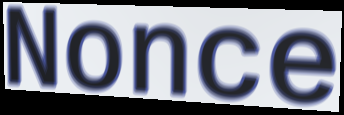
Nonce